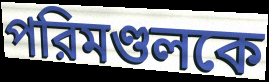
পরিমণ্ডলকে